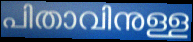
പിതാവിനുള്ള